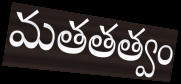
మతతత్వం